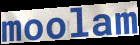
moolam